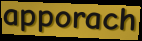
apporach